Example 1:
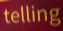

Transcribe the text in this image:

telling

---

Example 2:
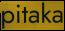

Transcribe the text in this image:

pitaka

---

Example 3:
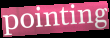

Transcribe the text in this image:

pointing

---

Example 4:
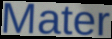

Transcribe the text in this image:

Mater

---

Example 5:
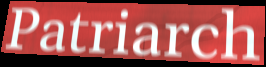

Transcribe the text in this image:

Patriarch